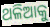
ଥଳିଆକୁ